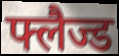
फ्लैज्ड